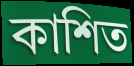
কাশিত